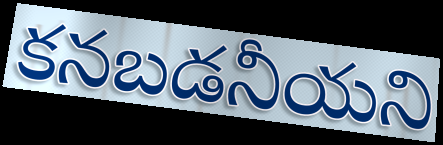
కనబడనీయని